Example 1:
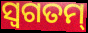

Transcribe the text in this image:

ସ୍ୱଗତମ୍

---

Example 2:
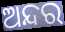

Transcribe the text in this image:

ଅନ୍ଦର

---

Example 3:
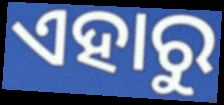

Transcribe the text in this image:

ଏହାରୁ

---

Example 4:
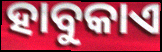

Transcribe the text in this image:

ହାବୁକାଏ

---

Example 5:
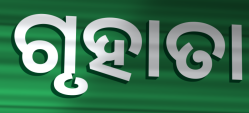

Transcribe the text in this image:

ଗୃହାତା